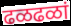
ढळढळां